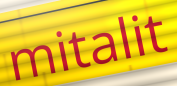
mitalit